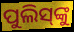
ପୁଲିସ୍‌ଙ୍କୁ